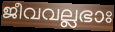
ജീവവല്ലഭാഃ